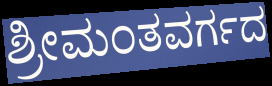
ಶ್ರೀಮಂತವರ್ಗದ